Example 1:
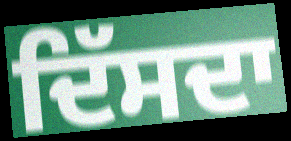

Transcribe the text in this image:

ਦਿੱਸਦਾ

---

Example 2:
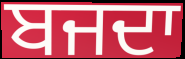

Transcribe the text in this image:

ਬਜਦਾ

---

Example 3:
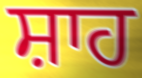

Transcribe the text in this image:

ਸ਼ਾਹ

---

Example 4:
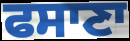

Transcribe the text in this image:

ਫਸਾਣਾ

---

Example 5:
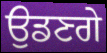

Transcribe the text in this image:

ਉਡਣਗੇ